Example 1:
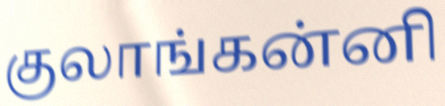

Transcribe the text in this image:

குலாங்கன்னி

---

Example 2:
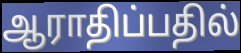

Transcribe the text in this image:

ஆராதிப்பதில்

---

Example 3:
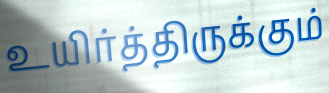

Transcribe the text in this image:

உயிர்த்திருக்கும்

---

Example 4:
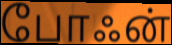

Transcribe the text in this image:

போஃன்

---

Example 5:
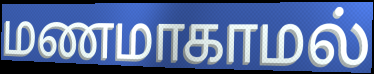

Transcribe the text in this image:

மணமாகாமல்